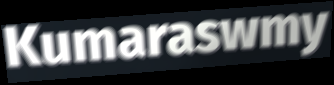
Kumaraswmy